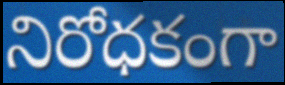
నిరోధకంగా